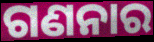
ଗଣନାର